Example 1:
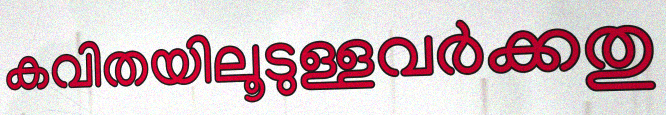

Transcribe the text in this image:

കവിതയിലൂടുള്ളവർക്കതു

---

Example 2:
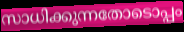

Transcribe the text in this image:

സാധിക്കുന്നതോടൊപ്പം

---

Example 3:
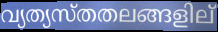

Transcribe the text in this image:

വ്യത്യസ്തതലങ്ങളില്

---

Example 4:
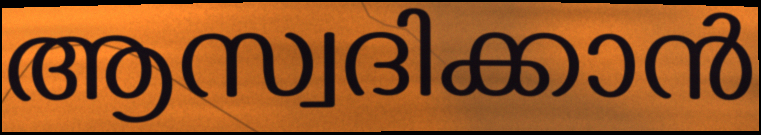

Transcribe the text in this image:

ആസ്വദിക്കാൻ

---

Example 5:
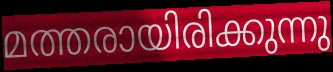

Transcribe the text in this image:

മത്തരായിരിക്കുന്നു